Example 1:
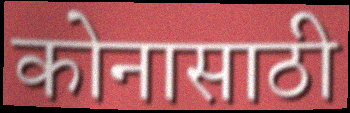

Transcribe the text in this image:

कोनासाठी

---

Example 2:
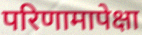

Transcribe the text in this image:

परिणामापेक्षा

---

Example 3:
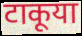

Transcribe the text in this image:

टाकूया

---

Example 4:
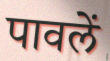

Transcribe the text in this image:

पावलें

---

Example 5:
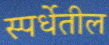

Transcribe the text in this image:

स्पर्धेतील